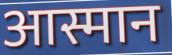
आस्मान